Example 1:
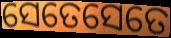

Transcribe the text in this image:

ସେତେସେତେ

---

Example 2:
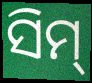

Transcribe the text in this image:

ସିମ୍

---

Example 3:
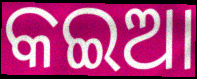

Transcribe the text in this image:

କଇଆ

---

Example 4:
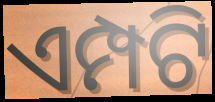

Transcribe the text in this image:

ଏମ୍ପଟି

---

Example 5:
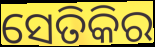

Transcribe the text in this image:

ସେତିକିର